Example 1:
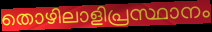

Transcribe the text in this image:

തൊഴിലാളിപ്രസ്ഥാനം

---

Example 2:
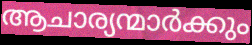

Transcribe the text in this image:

ആചാര്യന്മാർക്കും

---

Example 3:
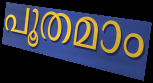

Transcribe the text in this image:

പൂതമാം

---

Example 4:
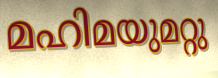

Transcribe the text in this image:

മഹിമയുമറ്റു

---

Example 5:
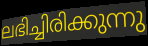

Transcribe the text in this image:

ലഭിച്ചിരിക്കുന്നു